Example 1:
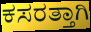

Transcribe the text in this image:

ಕಸರತ್ತಾಗಿ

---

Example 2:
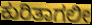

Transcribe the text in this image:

ಕುರಿತಾಗಲೀ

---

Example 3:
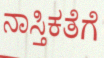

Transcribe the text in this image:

ನಾಸ್ತಿಕತೆಗೆ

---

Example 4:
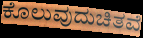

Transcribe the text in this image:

ಕೊಲುವುದುಚಿತವೆ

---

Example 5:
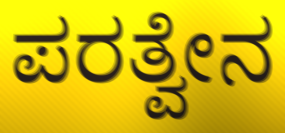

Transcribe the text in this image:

ಪರತ್ವೇನ